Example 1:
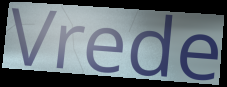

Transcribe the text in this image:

Vrede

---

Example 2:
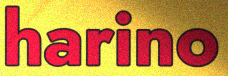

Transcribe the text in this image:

harino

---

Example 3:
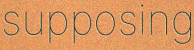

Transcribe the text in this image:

supposing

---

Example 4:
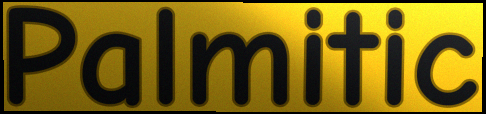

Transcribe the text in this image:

Palmitic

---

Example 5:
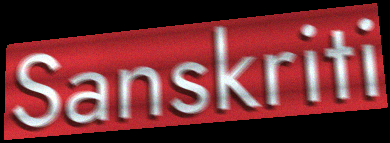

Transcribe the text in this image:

Sanskriti